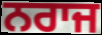
ਨਰਾਜ